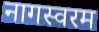
नागस्वरम